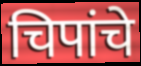
चिपांचे